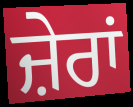
ਜ਼ੇਰਾਂ